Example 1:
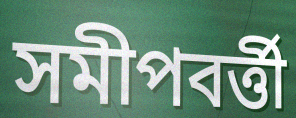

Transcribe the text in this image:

সমীপবর্ত্তী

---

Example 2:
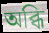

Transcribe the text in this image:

অব্ধি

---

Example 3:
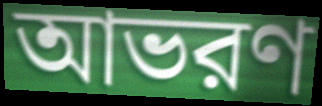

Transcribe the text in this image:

আভরণ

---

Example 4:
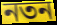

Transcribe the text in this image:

নতন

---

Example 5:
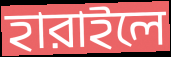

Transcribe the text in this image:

হারাইলে